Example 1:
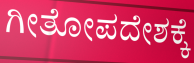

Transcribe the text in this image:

ಗೀತೋಪದೇಶಕ್ಕೆ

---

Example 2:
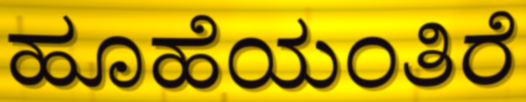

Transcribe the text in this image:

ಹೂಹೆಯಂತಿರೆ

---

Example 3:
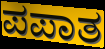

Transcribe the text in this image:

ಪಪಾತ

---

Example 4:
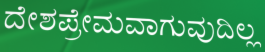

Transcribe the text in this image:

ದೇಶಪ್ರೇಮವಾಗುವುದಿಲ್ಲ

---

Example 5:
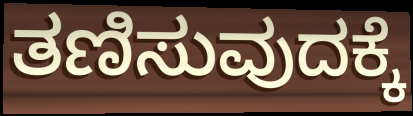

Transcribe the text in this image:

ತಣಿಸುವುದಕ್ಕೆ